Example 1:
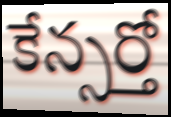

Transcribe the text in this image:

కేన్సర్తో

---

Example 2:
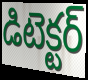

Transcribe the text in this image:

డిటెక్టర్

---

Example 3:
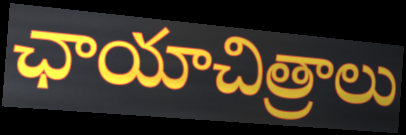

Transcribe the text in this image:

ఛాయాచిత్రాలు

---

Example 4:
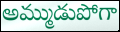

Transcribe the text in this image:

అమ్ముడుపోగా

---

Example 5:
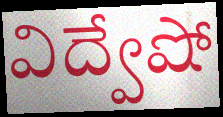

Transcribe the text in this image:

విద్వేషో